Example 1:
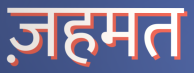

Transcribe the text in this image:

ज़हमत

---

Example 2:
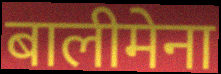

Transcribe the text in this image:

बालीमेना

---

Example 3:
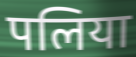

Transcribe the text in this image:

पलिया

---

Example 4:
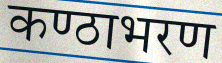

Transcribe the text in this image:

कण्ठाभरण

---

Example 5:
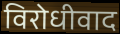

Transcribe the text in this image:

विरोधीवाद